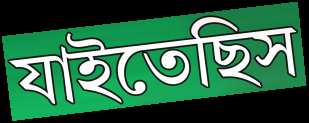
যাইতেছিস